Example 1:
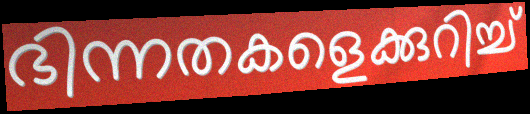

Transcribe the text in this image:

ഭിന്നതകളെക്കുറിച്ച്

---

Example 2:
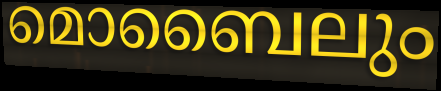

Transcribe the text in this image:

മൊബൈലും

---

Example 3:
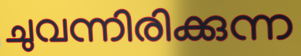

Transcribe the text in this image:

ചുവന്നിരിക്കുന്ന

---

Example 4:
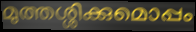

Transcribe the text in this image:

മുത്തശ്ശിക്കുമൊപ്പം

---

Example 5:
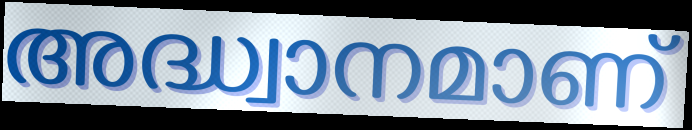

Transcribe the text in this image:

അദ്ധ്വാനമാണ്